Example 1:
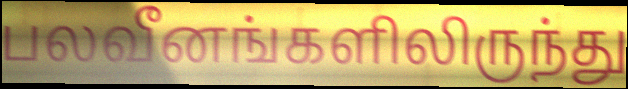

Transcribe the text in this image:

பலவீனங்களிலிருந்து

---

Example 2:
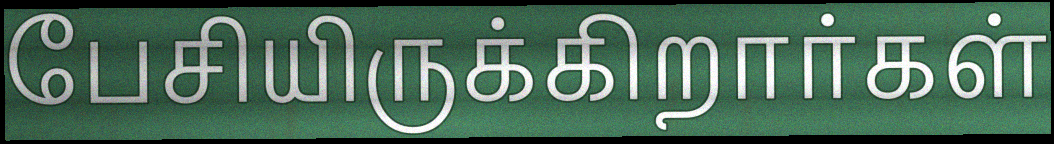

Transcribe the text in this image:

பேசியிருக்கிறார்கள்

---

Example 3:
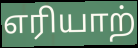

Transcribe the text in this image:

எரியாற்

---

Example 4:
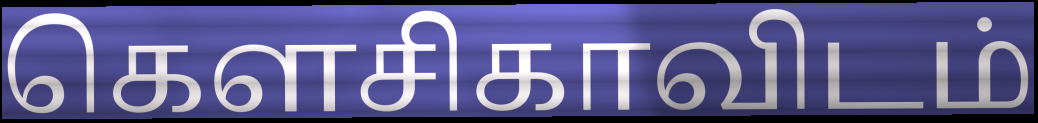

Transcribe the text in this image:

கௌசிகாவிடம்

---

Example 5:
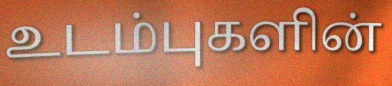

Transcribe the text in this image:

உடம்புகளின்